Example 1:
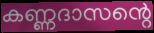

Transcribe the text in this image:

കണ്ണദാസന്റെ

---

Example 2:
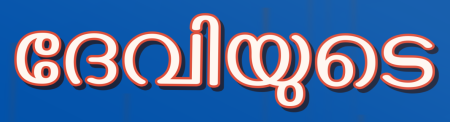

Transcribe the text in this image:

ദേവിയുടെ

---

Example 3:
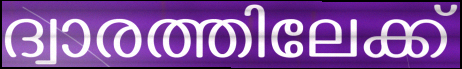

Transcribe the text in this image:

ദ്വാരത്തിലേക്ക്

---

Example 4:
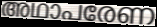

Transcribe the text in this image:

അഥാപരേണ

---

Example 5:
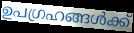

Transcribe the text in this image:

ഉപഗ്രഹങ്ങൾക്ക്